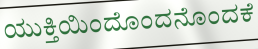
ಯುಕ್ತಿಯಿಂದೊಂದನೊಂದಕೆ